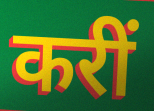
करीं